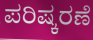
ಪರಿಷ್ಕರಣೆ